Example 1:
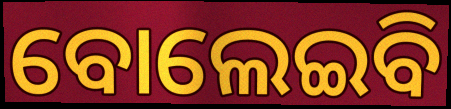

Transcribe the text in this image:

ବୋଲେଇବି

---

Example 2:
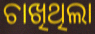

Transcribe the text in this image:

ଚାଖିଥିଲା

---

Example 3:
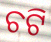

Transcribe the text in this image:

ଚଟି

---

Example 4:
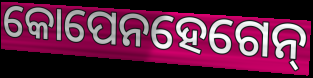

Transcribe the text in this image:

କୋପେନହେଗେନ୍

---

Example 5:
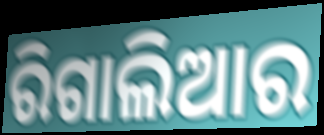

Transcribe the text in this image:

ରିଗାଲିଆର